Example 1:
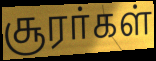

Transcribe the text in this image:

சூரர்கள்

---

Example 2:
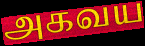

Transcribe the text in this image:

அகவய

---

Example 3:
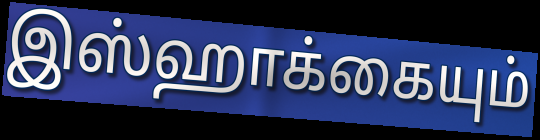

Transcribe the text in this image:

இஸ்ஹாக்கையும்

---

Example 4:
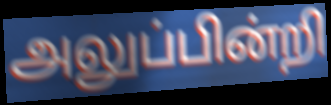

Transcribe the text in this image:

அலுப்பின்றி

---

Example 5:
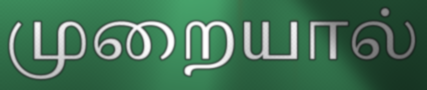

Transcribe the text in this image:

முறையால்